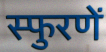
स्फुरणें